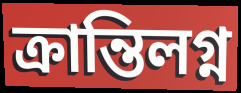
ক্রান্তিলগ্ন